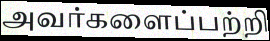
அவர்களைப்பற்றி